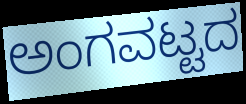
ಅಂಗವಟ್ಟದ